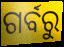
ଗର୍ବରୁ